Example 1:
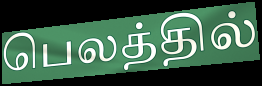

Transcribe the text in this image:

பெலத்தில்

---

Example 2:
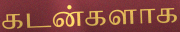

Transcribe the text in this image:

கடன்களாக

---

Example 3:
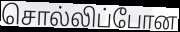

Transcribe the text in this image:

சொல்லிப்போன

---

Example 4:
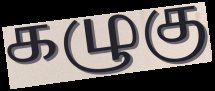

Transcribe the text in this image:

கழுகு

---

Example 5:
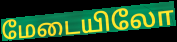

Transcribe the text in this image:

மேடையிலோ